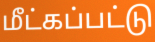
மீட்கப்பட்டு